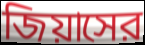
জিয়াসের